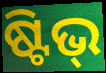
ଷ୍ଟିଭ୍